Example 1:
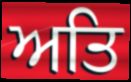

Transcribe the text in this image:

ਅਤਿ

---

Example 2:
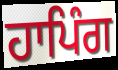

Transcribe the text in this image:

ਹਾਪਿੰਗ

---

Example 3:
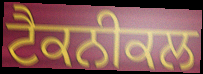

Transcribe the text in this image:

ਟੈਕਨੀਕਲ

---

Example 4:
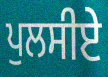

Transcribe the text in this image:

ਪੁਲਸੀਏ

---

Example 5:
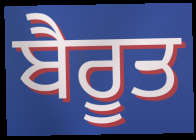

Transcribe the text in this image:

ਬੈਰੂਤ